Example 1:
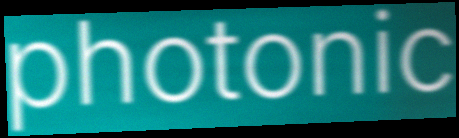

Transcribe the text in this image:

photonic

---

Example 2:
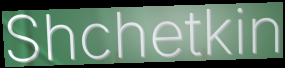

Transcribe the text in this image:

Shchetkin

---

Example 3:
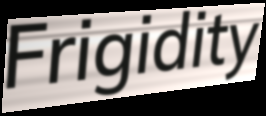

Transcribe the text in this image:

Frigidity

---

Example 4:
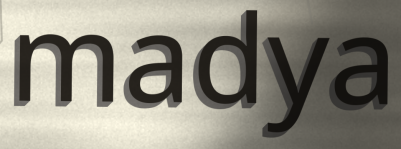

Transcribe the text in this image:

madya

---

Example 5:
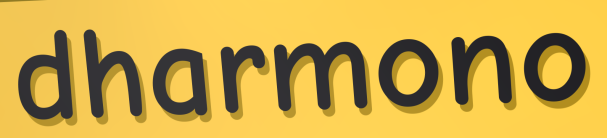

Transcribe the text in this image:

dharmono